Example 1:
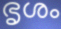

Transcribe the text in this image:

ഭൃശം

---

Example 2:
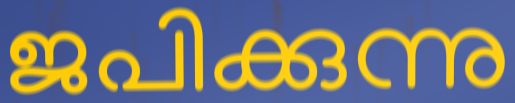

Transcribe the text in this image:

ജപിക്കുന്നു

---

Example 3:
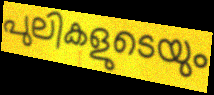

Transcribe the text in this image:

പുലികളുടെയും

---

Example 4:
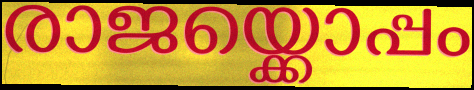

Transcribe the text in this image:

രാജയ്ക്കൊപ്പം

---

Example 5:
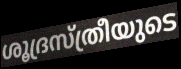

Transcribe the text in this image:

ശൂദ്രസ്ത്രീയുടെ